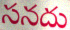
సనదు